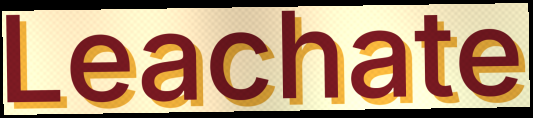
Leachate